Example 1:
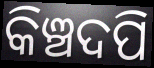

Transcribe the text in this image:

କିଞ୍ଚଦପି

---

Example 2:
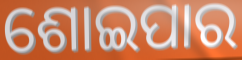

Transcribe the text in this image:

ଶୋଇପାର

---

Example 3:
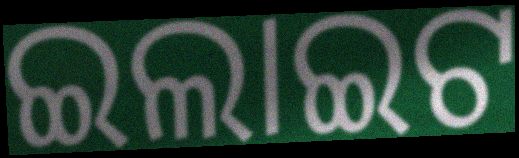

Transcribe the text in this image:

ଇଲାଇଟ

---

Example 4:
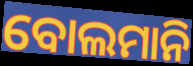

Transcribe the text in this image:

ବୋଲମାନି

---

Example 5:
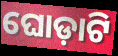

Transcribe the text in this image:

ଘୋଡ଼ାଟି